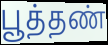
பூத்தண்